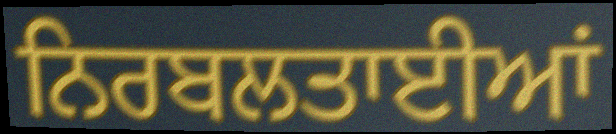
ਨਿਰਬਲਤਾਈਆਂ